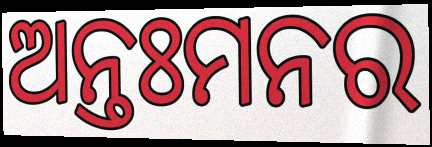
ଅନ୍ତଃମନର